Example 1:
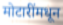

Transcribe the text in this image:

मोटारींमधून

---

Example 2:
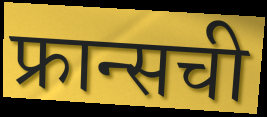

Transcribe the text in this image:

फ्रान्सची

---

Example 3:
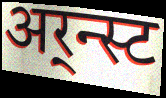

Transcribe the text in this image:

अर्न्स्ट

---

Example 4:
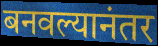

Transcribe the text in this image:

बनवल्यानंतर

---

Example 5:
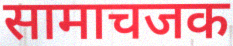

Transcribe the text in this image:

सामाचजक